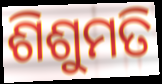
ଶିଶୁମତି